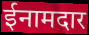
ईनामदार